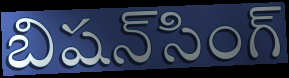
బిషన్‌సింగ్